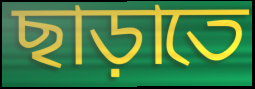
ছাড়াতে